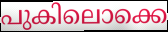
പുകിലൊക്കെ